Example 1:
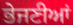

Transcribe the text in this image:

ਭੇਜਣੀਆਂ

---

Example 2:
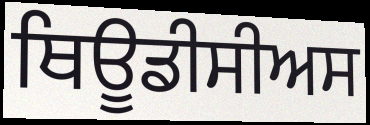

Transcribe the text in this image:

ਥਿਊਡੀਸੀਅਸ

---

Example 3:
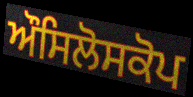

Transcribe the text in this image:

ਔਸਿਲੋਸਕੋਪ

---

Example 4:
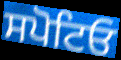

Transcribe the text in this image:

ਸਪੋਟਿਓ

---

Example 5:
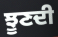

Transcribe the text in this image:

ਝੂਣਦੀ